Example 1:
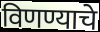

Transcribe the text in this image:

विणण्याचे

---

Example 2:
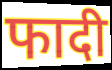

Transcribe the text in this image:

फादी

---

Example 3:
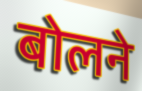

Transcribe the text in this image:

बोलने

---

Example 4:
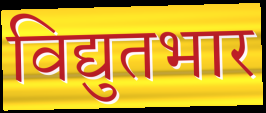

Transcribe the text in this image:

विद्युतभार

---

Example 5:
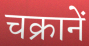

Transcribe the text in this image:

चक्रानें